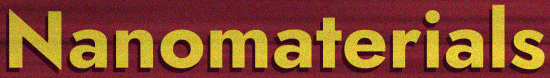
Nanomaterials